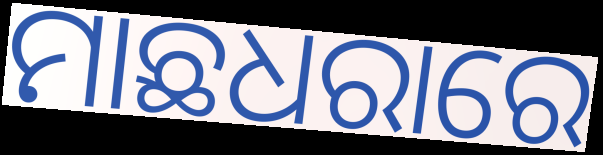
ମାଛଧରାରେ